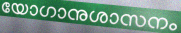
യോഗാനുശാസനം